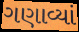
ગણાવ્યાં